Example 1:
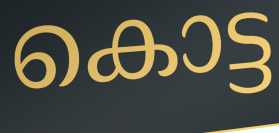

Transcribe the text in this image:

കൊട്ട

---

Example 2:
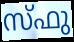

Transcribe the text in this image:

സ്ഫു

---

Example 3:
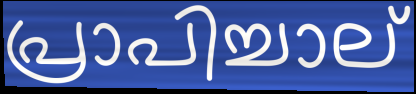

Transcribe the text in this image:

പ്രാപിച്ചാല്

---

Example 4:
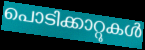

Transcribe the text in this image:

പൊടിക്കാറ്റുകൾ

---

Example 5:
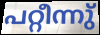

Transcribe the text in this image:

പറ്റീന്നു്